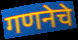
गणनेचे